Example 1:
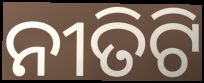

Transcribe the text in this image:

ନୀତିଟି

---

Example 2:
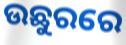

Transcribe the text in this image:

ଉଛୁରରେ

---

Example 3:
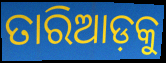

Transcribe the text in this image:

ତାରିଆଡ଼କୁ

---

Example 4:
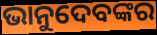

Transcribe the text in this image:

ଭାନୁଦେବଙ୍କର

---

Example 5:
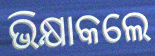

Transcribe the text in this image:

ଭିକ୍ଷାକଲେ